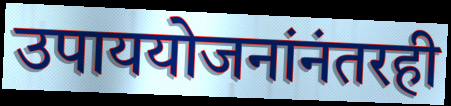
उपाययोजनांनंतरही